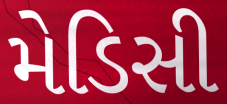
મેડિસી